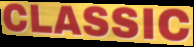
CLASSIC